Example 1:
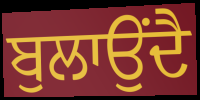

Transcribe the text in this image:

ਬੁਲਾਉਂਦੈ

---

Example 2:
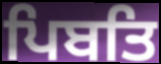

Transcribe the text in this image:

ਪਿਬਤਿ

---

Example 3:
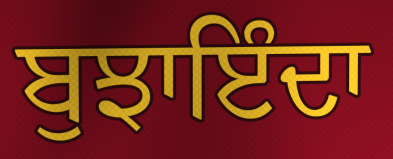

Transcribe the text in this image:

ਬੁਝਾਇੰਦਾ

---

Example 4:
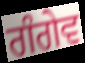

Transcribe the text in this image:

ਗੰਗੇਵ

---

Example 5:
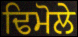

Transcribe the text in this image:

ਢਿਮੋਲੇ